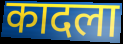
कादला